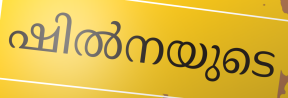
ഷിൽനയുടെ